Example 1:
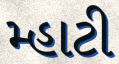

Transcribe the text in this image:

મ્હાટી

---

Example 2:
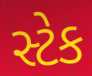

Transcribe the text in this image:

સ્ટેક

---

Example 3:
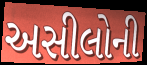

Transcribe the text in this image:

અસીલોની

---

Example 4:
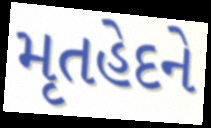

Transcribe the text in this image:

મૃતહેદને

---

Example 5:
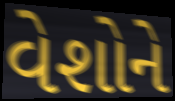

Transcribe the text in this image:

વેશોને